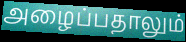
அழைப்பதாலும்